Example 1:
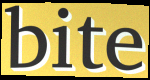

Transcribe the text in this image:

bite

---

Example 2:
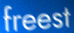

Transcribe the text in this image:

freest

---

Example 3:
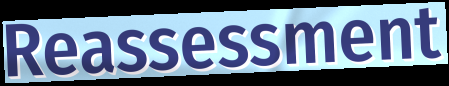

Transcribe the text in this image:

Reassessment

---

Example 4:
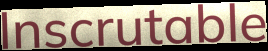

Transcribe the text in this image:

Inscrutable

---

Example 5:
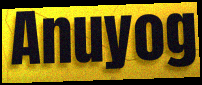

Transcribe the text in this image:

Anuyog